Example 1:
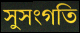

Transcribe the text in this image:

সুসংগতি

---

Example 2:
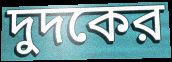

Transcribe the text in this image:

দুদকের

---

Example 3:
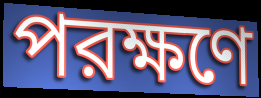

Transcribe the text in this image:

পরক্ষণে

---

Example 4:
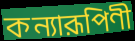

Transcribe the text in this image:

কন্যারূপিণী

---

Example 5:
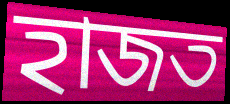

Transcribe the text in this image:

হাজত